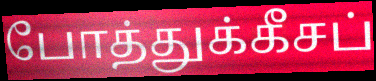
போத்துக்கீசப்